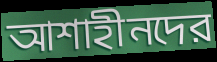
আশাহীনদের